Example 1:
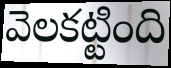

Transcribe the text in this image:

వెలకట్టింది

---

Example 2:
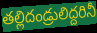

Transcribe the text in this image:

తల్లిదండ్రులిద్దరినీ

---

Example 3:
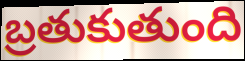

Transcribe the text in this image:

బ్రతుకుతుంది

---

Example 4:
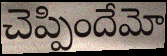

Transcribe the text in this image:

చెప్పిందేమో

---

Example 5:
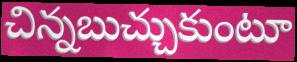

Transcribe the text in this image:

చిన్నబుచ్చుకుంటూ